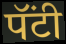
पॅंटी